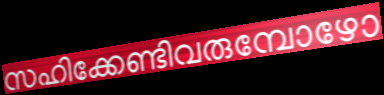
സഹിക്കേണ്ടിവരുമ്പോഴോ